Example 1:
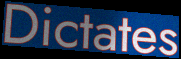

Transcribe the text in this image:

Dictates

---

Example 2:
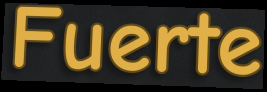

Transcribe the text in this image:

Fuerte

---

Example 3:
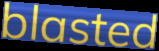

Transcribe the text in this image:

blasted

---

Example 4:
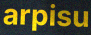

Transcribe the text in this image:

arpisu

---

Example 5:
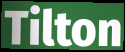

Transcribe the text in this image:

Tilton